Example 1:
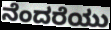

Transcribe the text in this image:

ನೆಂದರೆಯು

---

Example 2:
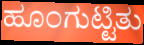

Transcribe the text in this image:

ಹೂಂಗುಟ್ಟಿತು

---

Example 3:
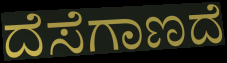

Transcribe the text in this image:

ದೆಸೆಗಾಣದೆ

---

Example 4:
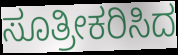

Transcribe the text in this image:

ಸೂತ್ರೀಕರಿಸಿದ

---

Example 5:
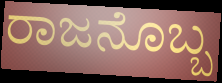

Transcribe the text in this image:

ರಾಜನೊಬ್ಬ